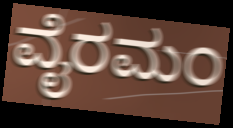
ವೈರಮಂ